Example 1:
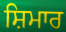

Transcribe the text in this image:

ਸ਼ਿਮਾਰ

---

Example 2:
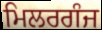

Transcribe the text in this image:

ਮਿਲਰਗੰਜ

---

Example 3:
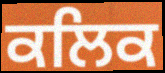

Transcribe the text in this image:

ਕਲਿਕ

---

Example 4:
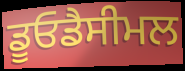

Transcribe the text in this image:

ਡੂਓਡੈਸੀਮਲ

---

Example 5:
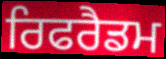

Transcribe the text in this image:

ਰਿਫਰੈਡਮ